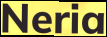
Neria